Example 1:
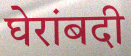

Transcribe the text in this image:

घेरांबदी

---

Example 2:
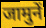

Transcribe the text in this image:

जामुनें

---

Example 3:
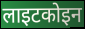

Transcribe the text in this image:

लाइटकोइन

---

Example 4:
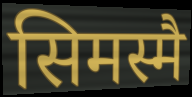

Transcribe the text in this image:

सिमस्मै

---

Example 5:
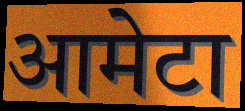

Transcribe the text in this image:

आमेटा